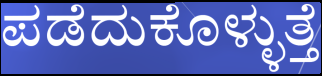
ಪಡೆದುಕೊಳ್ಳುತ್ತೆ